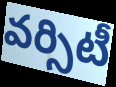
వర్సిటీ